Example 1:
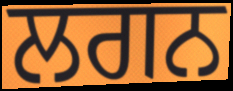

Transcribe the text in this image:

ਲਗਨ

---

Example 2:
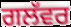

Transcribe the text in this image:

ਗਲੱਵਰ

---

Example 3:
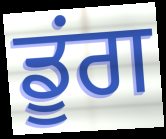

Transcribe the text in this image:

ਡੂਂਗ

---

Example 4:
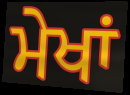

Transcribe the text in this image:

ਮੇਖਾਂ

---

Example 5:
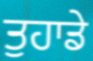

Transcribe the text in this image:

ਤੁਹਾਡੇ